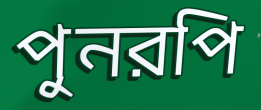
পুনরপি